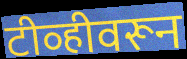
टीव्हीवरून